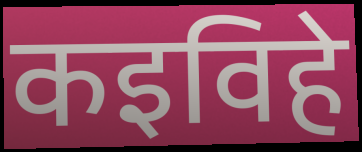
कइविहे